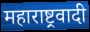
महाराष्ट्रवादी